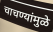
चाचण्यांमुळे